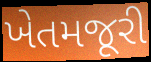
ખેતમજૂરી